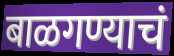
बाळगण्याचं